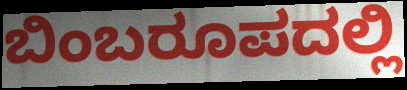
ಬಿಂಬರೂಪದಲ್ಲಿ